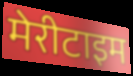
मेरीटाइम